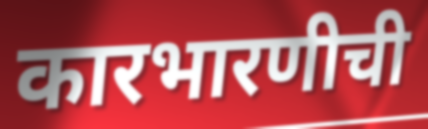
कारभारणीची